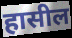
हासील